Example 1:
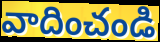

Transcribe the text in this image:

వాదించండి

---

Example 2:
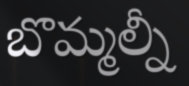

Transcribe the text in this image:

బొమ్మల్నీ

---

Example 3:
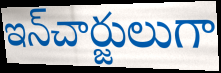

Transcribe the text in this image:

ఇన్‌చార్జులుగా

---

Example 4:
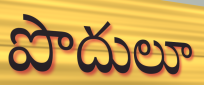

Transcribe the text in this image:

పొదులూ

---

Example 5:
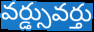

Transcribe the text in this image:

వర్డ్సువర్తు